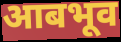
आबभूव